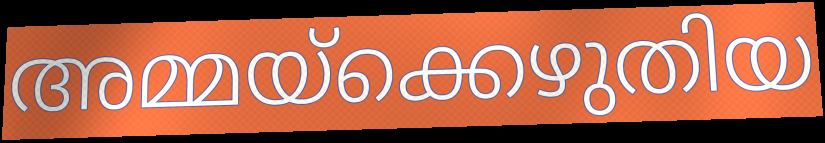
അമ്മയ്ക്കെഴുതിയ